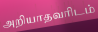
அறியாதவரிடம்